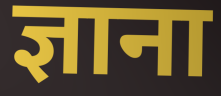
ज्ञाना